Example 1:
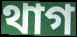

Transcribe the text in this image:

থাগ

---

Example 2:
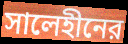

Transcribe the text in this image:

সালেহীনের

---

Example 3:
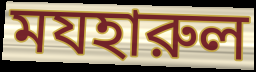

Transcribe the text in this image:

মযহারুল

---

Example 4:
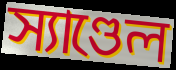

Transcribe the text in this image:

স্যাণ্ডেল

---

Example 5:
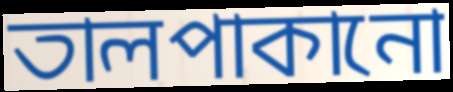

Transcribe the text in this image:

তালপাকানো